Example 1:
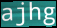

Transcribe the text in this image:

ajhg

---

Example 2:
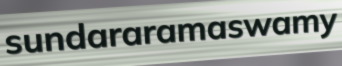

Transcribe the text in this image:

sundararamaswamy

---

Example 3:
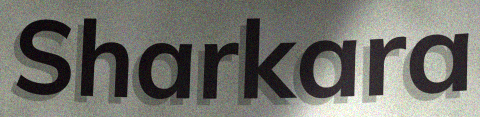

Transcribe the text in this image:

Sharkara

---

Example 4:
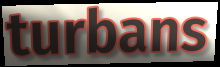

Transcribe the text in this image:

turbans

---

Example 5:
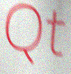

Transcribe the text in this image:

Qt